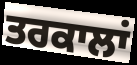
ਤਰਕਾਲਾਂ